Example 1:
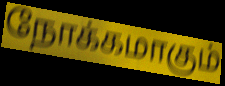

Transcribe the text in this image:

நோக்கமாகும்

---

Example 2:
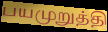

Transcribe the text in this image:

பயமுறுத்தி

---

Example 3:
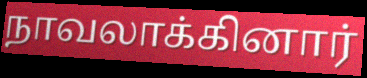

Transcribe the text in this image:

நாவலாக்கினார்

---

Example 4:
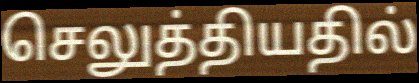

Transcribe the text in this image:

செலுத்தியதில்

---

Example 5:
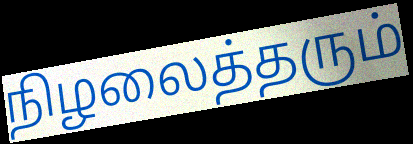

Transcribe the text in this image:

நிழலைத்தரும்